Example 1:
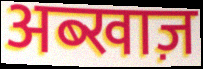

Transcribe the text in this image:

अब्खाज़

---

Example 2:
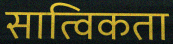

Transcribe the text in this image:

सात्विकता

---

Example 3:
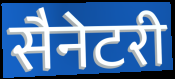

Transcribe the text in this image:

सैनेटरी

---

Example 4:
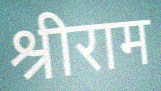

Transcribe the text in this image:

श्रीराम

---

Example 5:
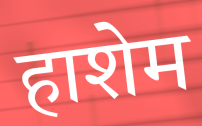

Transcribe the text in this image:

हाशेम